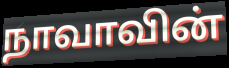
நாவாவின்